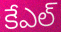
కేఎల్